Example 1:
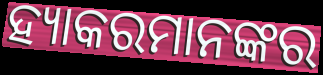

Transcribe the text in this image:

ହ୍ୟାକରମାନଙ୍କର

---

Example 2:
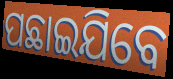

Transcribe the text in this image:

ପଛାଇଯିବେ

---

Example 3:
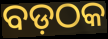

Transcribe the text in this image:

ବଡ଼ଠକ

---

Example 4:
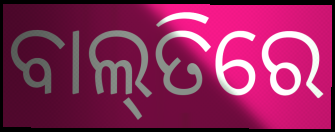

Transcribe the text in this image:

ବାଲ୍‌ତିରେ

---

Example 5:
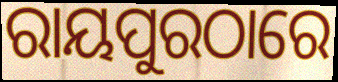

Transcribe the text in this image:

ରାୟପୁରଠାରେ